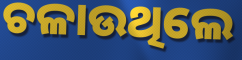
ଚଳାଉଥିଲେ